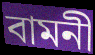
বামনী